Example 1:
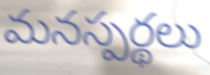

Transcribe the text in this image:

మనస్పర్థలు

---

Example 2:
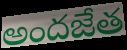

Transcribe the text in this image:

అందజేత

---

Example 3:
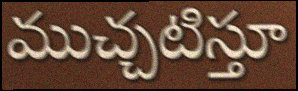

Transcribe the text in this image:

ముచ్చటిస్తూ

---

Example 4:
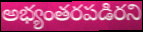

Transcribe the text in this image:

అభ్యంతరపడిరని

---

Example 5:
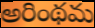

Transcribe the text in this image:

అరింథమ